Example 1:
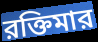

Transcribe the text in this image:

রক্তিমার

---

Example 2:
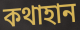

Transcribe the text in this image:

কথাহান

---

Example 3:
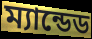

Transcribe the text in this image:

ম্যান্ডেড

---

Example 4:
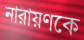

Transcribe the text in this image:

নারায়ণকে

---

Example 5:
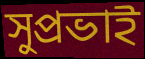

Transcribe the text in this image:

সুপ্রভাই